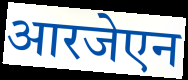
आरजेएन